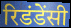
रिडंडेंसी